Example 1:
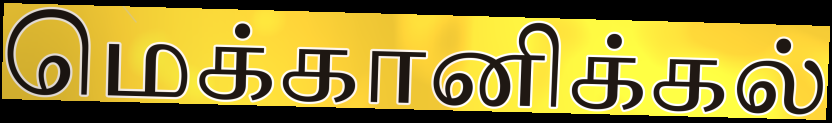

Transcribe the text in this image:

மெக்கானிக்கல்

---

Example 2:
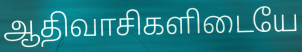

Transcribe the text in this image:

ஆதிவாசிகளிடையே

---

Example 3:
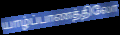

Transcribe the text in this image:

யாழ்ப்பாணத்திலோ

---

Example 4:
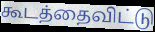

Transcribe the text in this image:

கூடத்தைவிட்டு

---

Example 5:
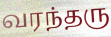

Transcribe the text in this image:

வரந்தரு